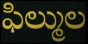
ఫిల్ముల